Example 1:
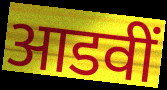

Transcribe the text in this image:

आडवीं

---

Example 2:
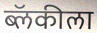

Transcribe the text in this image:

ब्लॅकीला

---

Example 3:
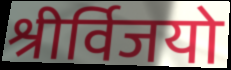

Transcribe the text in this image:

श्रीर्विजयो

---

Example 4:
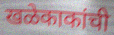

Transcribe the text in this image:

खळेकाकांची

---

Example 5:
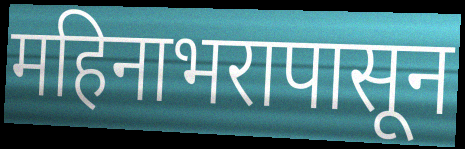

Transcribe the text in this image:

महिनाभरापासून